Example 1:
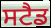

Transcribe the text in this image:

ਸਟੈਡ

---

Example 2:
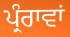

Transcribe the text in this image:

ਪ੍ਰੰਰਾਵਾਂ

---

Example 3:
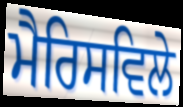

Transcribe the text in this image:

ਮੈਰਿਸਵਿਲੇ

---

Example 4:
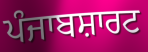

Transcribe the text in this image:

ਪੰਜਾਬਸ਼ਾਰਟ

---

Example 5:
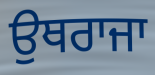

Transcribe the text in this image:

ਉਥਰਾਜਾ